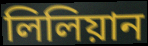
লিলিয়ান